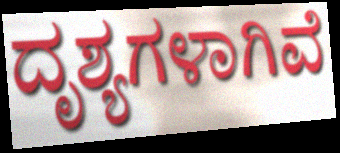
ದೃಶ್ಯಗಳಾಗಿವೆ